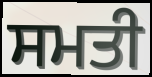
ਸਮਤੀ